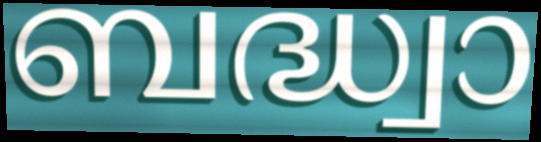
ബദ്ധ്വാ